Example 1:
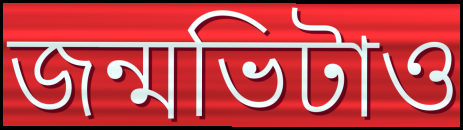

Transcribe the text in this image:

জন্মভিটাও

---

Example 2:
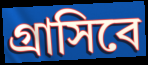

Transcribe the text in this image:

গ্রাসিবে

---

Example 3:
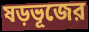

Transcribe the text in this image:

ষড়ভূজের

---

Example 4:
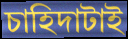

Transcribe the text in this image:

চাহিদাটাই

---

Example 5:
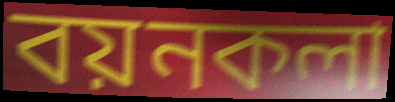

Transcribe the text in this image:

বয়নকলা